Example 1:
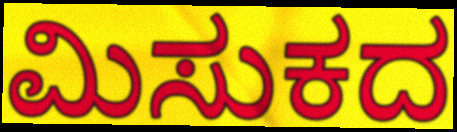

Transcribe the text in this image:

ಮಿಸುಕದ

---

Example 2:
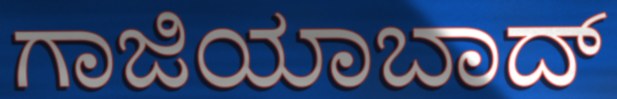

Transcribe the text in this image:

ಗಾಜಿಯಾಬಾದ್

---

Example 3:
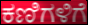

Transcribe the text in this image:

ಕಣಿಗಳಿಗೆ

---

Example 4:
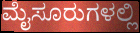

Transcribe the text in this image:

ಮೈಸೂರುಗಳಲ್ಲಿ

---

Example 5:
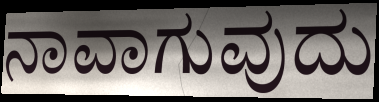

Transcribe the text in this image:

ನಾವಾಗುವುದು